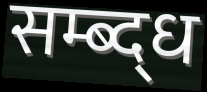
सम्ब्द्ध